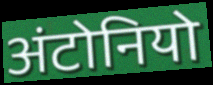
अंटोनियो